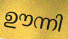
ഊന്നി